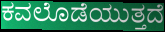
ಕವಲೊಡೆಯುತ್ತದೆ